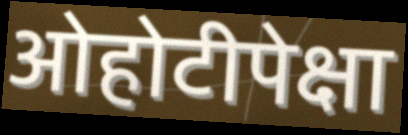
ओहोटीपेक्षा